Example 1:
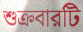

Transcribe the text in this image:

শুক্রবারটি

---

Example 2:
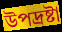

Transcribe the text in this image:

উপদ্রষ্টা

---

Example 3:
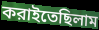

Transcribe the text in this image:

করাইতেছিলাম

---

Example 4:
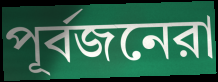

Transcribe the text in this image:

পূর্বজনেরা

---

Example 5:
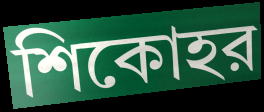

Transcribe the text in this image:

শিকোহর